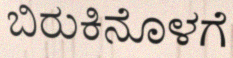
ಬಿರುಕಿನೊಳಗೆ